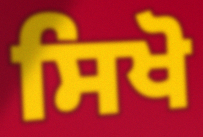
ਸਿਖੋ